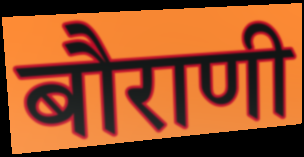
बौराणी